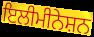
ਇਲੀਮੀਨੇਸ਼ਨ